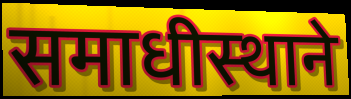
समाधीस्थाने